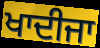
ਖਾਦੀਜਾ